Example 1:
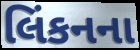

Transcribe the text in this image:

લિંકનના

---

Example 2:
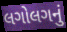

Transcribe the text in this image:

લગોલગનું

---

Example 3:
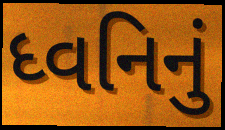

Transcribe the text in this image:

ધ્વનિનું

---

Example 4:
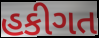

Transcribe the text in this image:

હકીગત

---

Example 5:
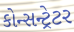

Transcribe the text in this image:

કોન્સન્ટ્રેટર